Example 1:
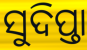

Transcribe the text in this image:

ସୁଦିପ୍ତା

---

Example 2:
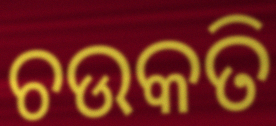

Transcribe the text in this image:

ଚଉକତି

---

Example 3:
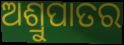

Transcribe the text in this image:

ଅଶ୍ରୁପାତର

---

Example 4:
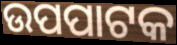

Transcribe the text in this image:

ଉପପାଟକ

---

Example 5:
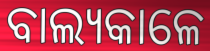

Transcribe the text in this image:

ବାଲ୍ୟକାଳେ